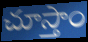
చూస్తాం